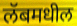
लॅबमधील